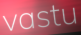
vastu